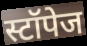
स्टॉपेज